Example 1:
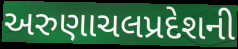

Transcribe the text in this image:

અરુણાચલપ્રદેશની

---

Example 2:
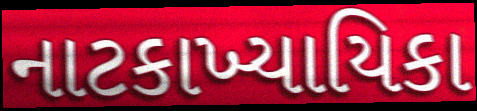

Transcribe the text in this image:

નાટકાખ્યાયિકા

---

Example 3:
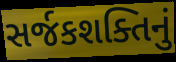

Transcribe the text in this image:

સર્જકશક્તિનું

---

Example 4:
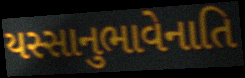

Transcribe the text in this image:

યસ્સાનુભાવેનાતિ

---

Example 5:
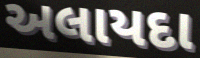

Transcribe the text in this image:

અલાયદા